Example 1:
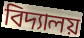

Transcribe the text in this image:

বিদ্যালয়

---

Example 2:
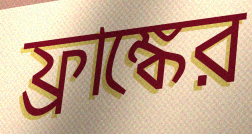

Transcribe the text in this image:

ফ্রাঙ্কের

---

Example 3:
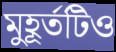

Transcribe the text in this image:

মুহূর্তটিও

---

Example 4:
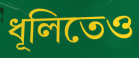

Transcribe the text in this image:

ধূলিতেও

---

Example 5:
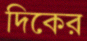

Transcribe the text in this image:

দিকের